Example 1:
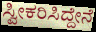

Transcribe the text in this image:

ಸ್ವೀಕರಿಸಿದ್ದೇನೆ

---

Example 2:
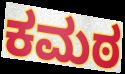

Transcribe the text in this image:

ಕಮಠ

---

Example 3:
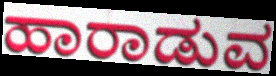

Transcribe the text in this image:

ಹಾರಾಡುವ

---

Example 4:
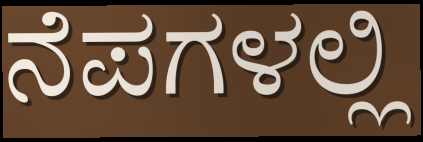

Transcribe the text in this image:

ನೆಪಗಳಲ್ಲಿ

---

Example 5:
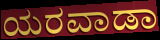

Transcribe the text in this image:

ಯರವಾಡಾ